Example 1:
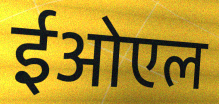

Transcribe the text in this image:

ईओएल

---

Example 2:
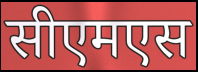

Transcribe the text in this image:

सीएमएस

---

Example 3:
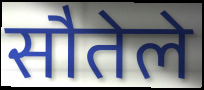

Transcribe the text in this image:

सौतेले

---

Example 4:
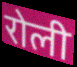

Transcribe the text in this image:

रोली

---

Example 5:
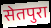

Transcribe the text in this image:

सेतपुरा